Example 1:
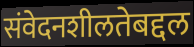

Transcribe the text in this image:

संवेदनशीलतेबद्दल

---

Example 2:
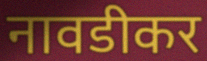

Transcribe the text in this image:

नावडीकर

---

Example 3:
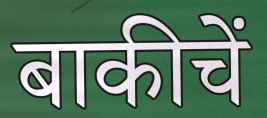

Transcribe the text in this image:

बाकीचें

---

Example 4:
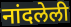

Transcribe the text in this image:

नांदलेली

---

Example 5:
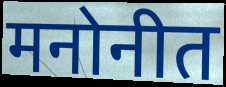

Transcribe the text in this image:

मनोनीत